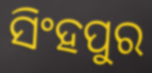
ସିଂହପୁର